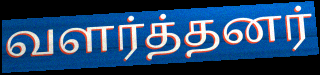
வளர்த்தனர்